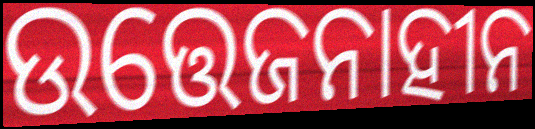
ଉତ୍ତେଜନାହୀନ